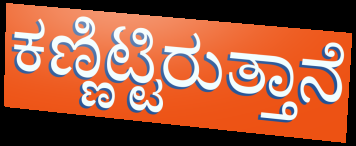
ಕಣ್ಣಿಟ್ಟಿರುತ್ತಾನೆ